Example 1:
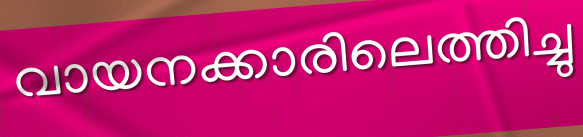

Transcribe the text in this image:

വായനക്കാരിലെത്തിച്ചു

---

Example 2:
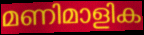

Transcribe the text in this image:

മണിമാളിക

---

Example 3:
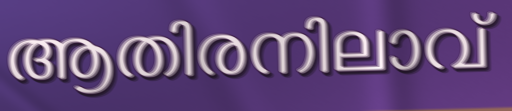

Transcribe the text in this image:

ആതിരനിലാവ്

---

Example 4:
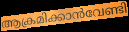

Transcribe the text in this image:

ആക്രമിക്കാൻവേണ്ടി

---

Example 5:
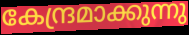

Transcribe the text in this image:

കേന്ദ്രമാക്കുന്നു